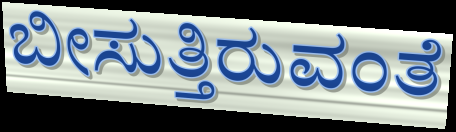
ಬೀಸುತ್ತಿರುವಂತೆ